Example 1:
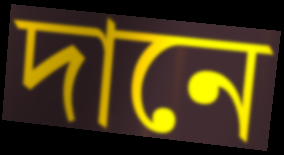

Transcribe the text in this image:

দানে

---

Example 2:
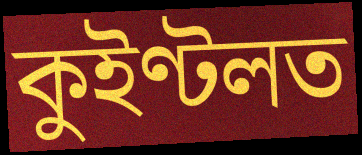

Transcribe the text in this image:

কুইণ্টলত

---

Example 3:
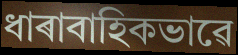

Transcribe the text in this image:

ধাৰাবাহিকভাৱে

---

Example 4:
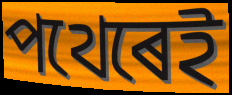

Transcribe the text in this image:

পথেৰেই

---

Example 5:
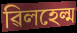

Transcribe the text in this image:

ৱিলহেল্ম